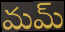
మమ్